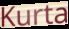
Kurta